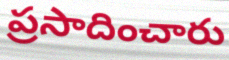
ప్రసాదించారు